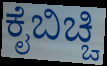
ಕೈಬಿಚ್ಚಿ